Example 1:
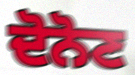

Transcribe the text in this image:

ਦੋਨੋਣ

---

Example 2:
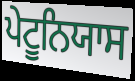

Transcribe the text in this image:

ਪੇਟੂਨਿਯਾਸ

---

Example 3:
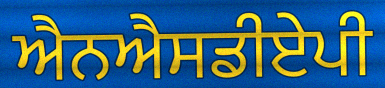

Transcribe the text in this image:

ਐਨਐਸਡੀਏਪੀ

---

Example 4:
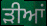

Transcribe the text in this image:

ੜੀਆਂ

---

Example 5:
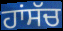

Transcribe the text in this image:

ਹਾਂਸੱਚ